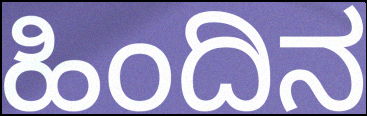
ಹಿಂದಿನ